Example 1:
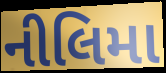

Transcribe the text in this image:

નીલિમા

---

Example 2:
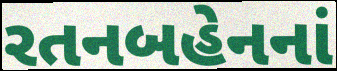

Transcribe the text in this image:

રતનબહેનનાં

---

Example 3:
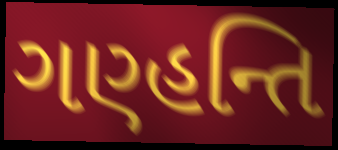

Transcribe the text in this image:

ગણ્હન્તિ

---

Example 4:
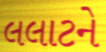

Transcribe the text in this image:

લલાટને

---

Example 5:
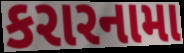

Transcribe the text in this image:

કરારનામા